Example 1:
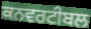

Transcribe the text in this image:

ਕਨਵਰਟੀਬਲ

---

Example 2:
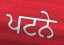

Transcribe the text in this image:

ਪਟਨੇ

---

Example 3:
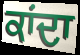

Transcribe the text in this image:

ਕਾਂਦਾ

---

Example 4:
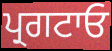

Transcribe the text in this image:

ਪ੍ਰਗਟਾਓ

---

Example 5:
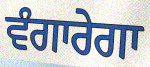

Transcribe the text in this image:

ਵੰਗਾਰੇਗਾ